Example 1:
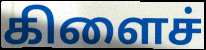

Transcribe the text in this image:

கிளைச்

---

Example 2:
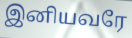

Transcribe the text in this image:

இனியவரே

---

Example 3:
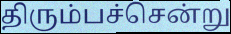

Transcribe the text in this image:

திரும்பச்சென்று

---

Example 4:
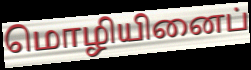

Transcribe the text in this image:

மொழியினைப்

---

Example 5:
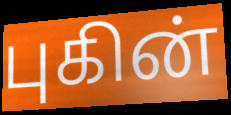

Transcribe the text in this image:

புகின்